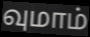
வுமாம்